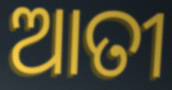
ଆତୀ